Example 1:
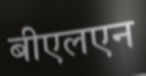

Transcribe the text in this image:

बीएलएन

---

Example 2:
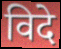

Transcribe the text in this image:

विदे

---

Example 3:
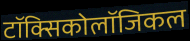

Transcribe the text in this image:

टॉक्सिकोलॉजिकल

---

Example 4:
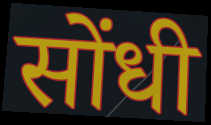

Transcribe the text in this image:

सोंधी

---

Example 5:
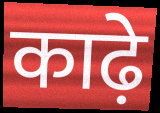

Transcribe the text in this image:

काढ़े